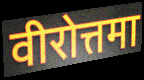
वीरोत्तमा